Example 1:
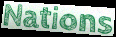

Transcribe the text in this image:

Nations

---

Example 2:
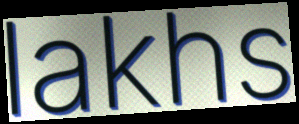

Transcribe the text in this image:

lakhs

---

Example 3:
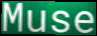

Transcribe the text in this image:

Muse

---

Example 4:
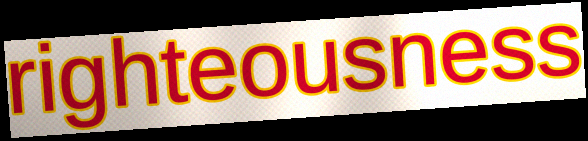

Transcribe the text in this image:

righteousness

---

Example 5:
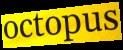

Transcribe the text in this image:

octopus